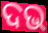
ଦଭ